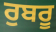
ਰੁਬਰੂ